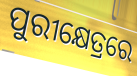
ପୁରୀକ୍ଷେତ୍ରରେ